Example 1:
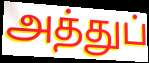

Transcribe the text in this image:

அத்துப்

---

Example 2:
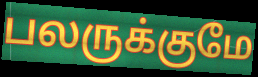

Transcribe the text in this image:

பலருக்குமே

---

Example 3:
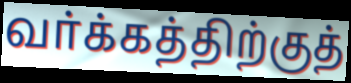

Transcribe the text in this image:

வர்க்கத்திற்குத்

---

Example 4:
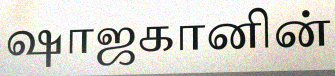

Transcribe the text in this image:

ஷாஜகானின்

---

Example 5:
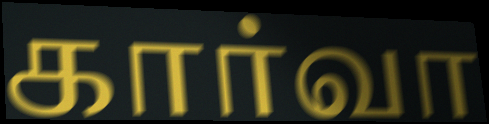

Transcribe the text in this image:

கார்வா